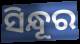
ସିନ୍ଧୂର